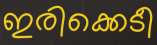
ഇരിക്കെടീ